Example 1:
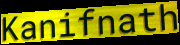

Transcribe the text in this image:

Kanifnath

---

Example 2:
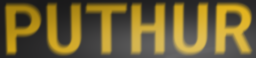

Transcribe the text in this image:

PUTHUR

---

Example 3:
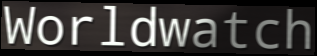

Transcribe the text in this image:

Worldwatch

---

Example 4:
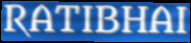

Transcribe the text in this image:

RATIBHAI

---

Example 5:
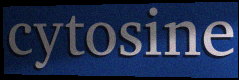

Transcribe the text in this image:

cytosine